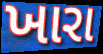
ખારા